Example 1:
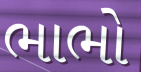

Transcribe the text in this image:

ભાભો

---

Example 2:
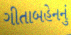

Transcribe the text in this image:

ગીતાબહેનનું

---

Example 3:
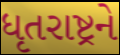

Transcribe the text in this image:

ધૃતરાષ્ટ્રને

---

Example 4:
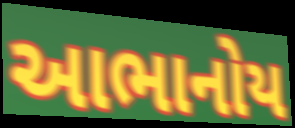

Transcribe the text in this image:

આભાનોય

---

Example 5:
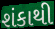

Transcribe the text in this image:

શંકાથી